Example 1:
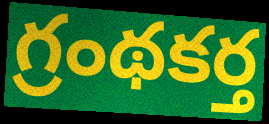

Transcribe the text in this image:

గ్రంథకర్త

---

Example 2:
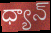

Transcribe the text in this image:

ధ్యాన్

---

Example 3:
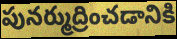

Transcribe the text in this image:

పునర్ముద్రించడానికి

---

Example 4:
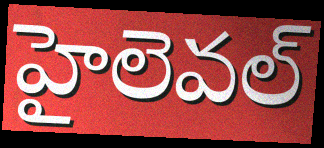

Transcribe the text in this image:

హైలెవల్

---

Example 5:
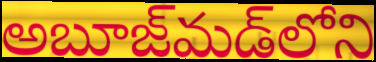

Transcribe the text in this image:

అబూజ్‌మడ్‌లోని